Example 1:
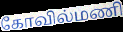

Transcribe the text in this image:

கோவில்மணி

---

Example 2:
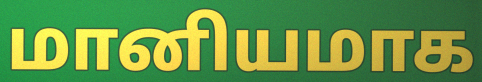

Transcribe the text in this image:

மானியமாக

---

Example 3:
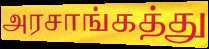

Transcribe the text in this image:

அரசாங்கத்து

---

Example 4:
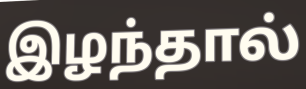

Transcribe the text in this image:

இழந்தால்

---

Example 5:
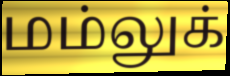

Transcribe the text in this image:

மம்லுக்